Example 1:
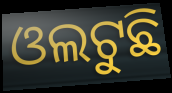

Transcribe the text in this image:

ଓଲଟୁଛି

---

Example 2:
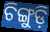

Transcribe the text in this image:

ଚିଙ୍ଗୁଡ଼ି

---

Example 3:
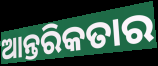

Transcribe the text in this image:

ଆନ୍ତରିକତାର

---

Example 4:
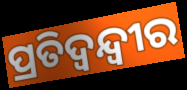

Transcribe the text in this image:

ପ୍ରତିଦ୍ବନ୍ଦ୍ବୀର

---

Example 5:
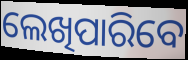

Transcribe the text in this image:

ଲେଖିପାରିବେ